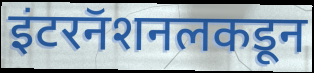
इंटरनॅशनलकडून